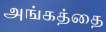
அங்கத்தை